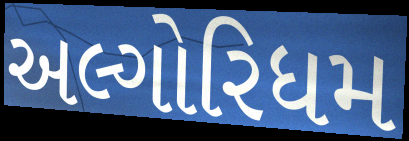
અલ્ગોરિધમ